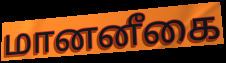
மானனீகை